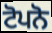
ਟੋਪਨੋ